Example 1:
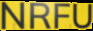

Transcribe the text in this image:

NRFU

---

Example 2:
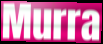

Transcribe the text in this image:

Murra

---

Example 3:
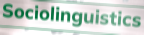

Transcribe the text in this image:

Sociolinguistics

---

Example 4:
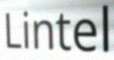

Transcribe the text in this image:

Lintel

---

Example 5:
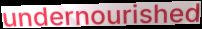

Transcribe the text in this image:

undernourished